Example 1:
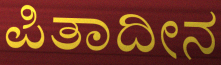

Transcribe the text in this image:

ಪಿತಾದೀನ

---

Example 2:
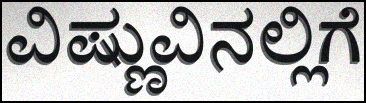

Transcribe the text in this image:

ವಿಷ್ಣುವಿನಲ್ಲಿಗೆ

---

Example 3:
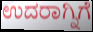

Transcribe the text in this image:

ಉದರಾಗ್ನಿಗೆ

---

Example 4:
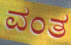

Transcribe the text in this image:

ವಂತ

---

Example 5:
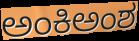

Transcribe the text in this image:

ಅಂಕಿಅಂಶ